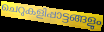
ചെറുകളിപ്പാട്ടങ്ങളും